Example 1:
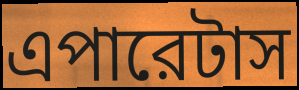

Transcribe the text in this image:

এপারেটাস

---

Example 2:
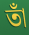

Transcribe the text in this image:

তাঁ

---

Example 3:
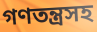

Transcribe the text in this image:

গণতন্ত্রসহ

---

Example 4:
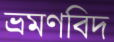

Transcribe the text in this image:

ভ্রমণবিদ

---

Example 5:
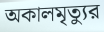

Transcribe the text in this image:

অকালমৃত্যুর